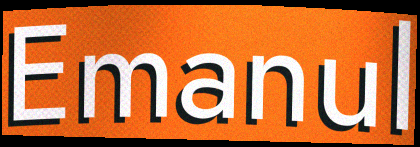
Emanul